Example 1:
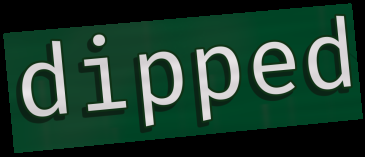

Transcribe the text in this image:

dipped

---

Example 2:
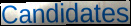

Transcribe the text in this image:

Candidates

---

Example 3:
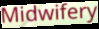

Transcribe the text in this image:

Midwifery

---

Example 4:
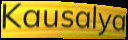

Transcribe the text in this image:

Kausalya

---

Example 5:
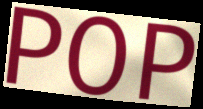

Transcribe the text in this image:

POP